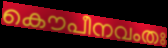
കൌപീനവംതഃ